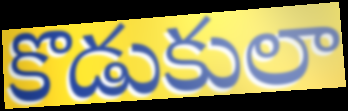
కొడుకులా